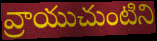
వ్రాయుచుంటిని